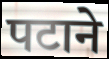
पटाने